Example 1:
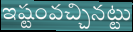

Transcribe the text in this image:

ఇష్టంవచ్చినట్టు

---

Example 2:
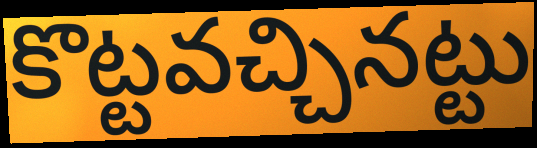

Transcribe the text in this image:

కొట్టవచ్చినట్టు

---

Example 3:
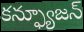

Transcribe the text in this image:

కన్ఫ్యూజన్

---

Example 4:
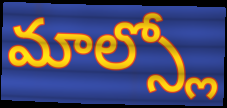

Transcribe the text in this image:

మాల్స్లో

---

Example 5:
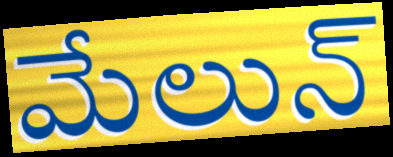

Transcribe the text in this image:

మేలున్